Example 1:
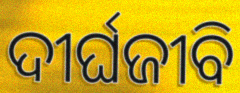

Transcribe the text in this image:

ଦୀର୍ଘଜୀବି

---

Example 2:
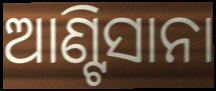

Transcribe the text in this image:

ଆଣ୍ଟିସାନା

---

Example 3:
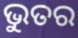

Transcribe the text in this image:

ଭୁତର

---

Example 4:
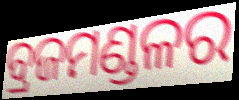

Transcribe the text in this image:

ବ୍ରଜମଣ୍ଡଳର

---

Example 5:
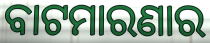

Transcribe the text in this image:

ବାଟମାରଣାର